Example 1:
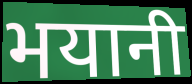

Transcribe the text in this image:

भयानी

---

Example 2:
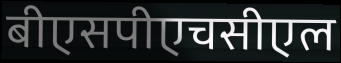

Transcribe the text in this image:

बीएसपीएचसीएल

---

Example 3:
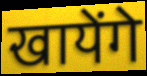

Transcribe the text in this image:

खायेंगे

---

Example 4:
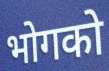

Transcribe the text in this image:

भोगको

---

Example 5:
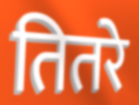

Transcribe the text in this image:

तितरे